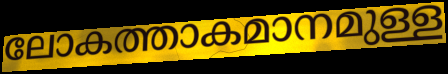
ലോകത്താകമാനമുള്ള